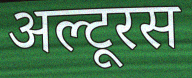
अल्टूरस